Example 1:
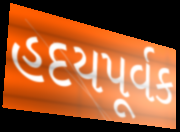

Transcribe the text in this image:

હદયપૂર્વક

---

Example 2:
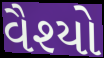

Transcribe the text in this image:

વૈશ્યો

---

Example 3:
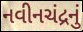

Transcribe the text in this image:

નવીનચંદ્રનું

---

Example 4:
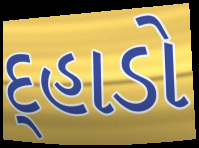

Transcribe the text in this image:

દ્હાડો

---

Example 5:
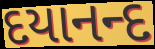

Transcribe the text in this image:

દયાનન્દ